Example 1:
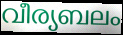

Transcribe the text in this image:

വീര്യബലം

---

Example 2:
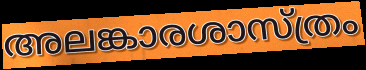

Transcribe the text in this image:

അലങ്കാരശാസ്ത്രം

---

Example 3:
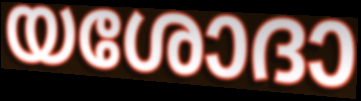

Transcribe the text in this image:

യശോദാ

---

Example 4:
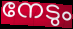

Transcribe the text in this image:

നേടും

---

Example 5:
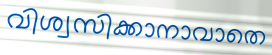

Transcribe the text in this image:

വിശ്വസിക്കാനാവാതെ